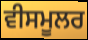
ਵੀਸਮੂਲਰ